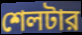
শেলটার